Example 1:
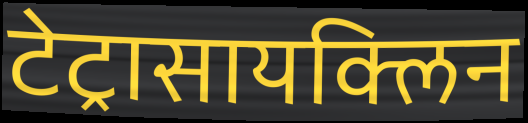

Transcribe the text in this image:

टेट्रासायक्लिन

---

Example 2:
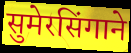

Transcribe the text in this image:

सुमेरसिंगाने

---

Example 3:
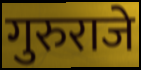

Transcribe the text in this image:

गुरुराजे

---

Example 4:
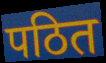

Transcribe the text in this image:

पठित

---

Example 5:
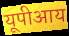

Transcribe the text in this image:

यूपीआय